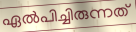
ഏൽപിച്ചിരുന്നത്